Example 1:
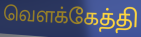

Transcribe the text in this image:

வெளக்கேத்தி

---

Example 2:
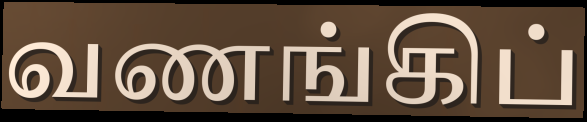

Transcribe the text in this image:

வணங்கிப்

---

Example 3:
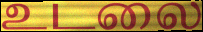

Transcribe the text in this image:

உடலை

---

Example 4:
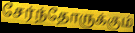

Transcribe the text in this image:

சேர்ந்தோருக்கும்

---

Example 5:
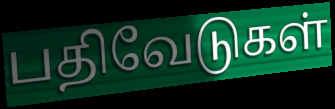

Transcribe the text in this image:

பதிவேடுகள்